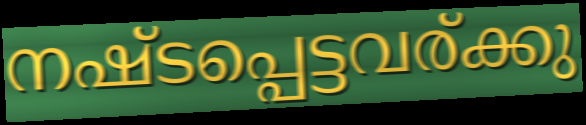
നഷ്ടപ്പെട്ടവര്ക്കു